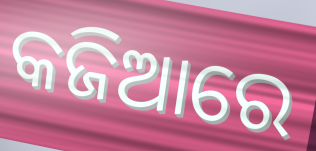
କଜିଆରେ